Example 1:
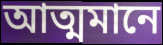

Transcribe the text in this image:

আত্মমানে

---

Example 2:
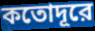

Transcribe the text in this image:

কতোদূরে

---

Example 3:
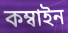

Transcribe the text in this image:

কম্বাইন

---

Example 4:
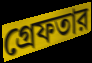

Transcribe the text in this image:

গ্রেফতার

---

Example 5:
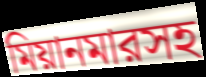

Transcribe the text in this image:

মিয়ানমারসহ